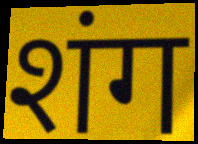
शंग